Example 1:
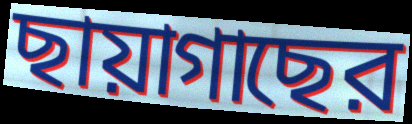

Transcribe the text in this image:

ছায়াগাছের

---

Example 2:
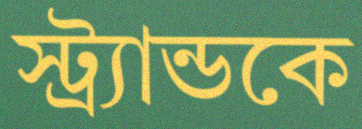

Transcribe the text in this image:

স্ট্র্যান্ডকে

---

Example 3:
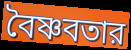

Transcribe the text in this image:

বৈষ্ণবতার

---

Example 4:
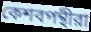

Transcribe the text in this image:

কেশবপন্থীরা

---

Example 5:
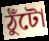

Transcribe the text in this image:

ঠুঁটো